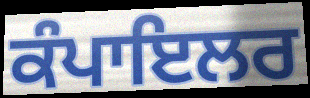
ਕੰਪਾਇਲਰ